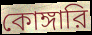
কোঙ্গারি